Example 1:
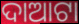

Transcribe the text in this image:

ଦାଆଟା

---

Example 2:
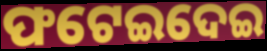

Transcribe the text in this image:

ଫଟେଇଦେଇ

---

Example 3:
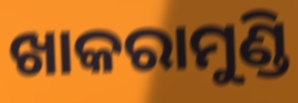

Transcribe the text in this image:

ଖାକରାମୁଣ୍ଡି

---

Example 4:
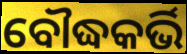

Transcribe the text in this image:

ବୌଦ୍ଧକର୍ଭି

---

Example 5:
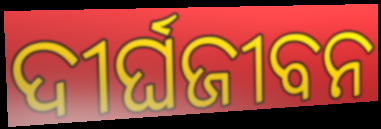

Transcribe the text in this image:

ଦୀର୍ଘଜୀବନ